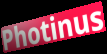
Photinus